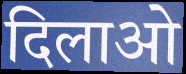
दिलाओ